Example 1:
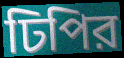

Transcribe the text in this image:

ঢিপির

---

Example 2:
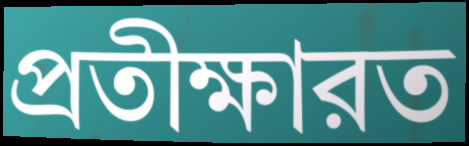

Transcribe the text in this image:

প্রতীক্ষারত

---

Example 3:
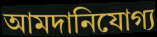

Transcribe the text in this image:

আমদানিযোগ্য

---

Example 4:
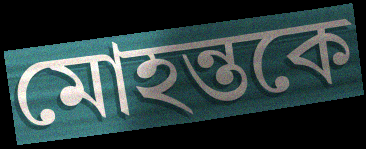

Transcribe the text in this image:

মোহন্তকে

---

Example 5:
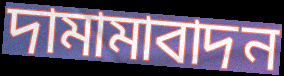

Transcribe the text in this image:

দামামাবাদন